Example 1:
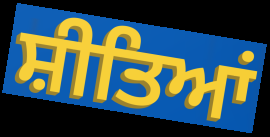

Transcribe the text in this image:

ਸ਼ੀਤਿਆਂ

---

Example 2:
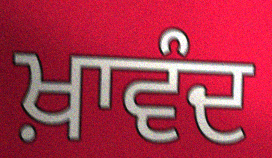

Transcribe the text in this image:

ਖ਼ਾਵੰਦ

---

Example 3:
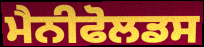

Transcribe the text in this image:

ਮੈਨੀਫੋਲਡਸ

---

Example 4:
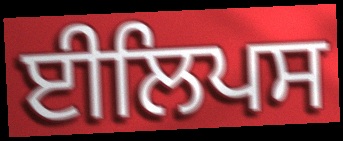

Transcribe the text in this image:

ਈਲਿਪਸ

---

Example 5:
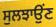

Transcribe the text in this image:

ਸੁਲਝਾਉਂਣ